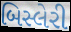
બિસ્લેરી